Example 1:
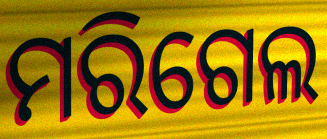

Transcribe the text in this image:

ମରିଗେଲ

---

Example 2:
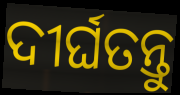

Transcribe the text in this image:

ଦୀର୍ଘତନ୍ତୁ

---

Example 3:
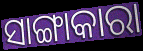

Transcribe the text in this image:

ସାଙ୍ଗାକାରା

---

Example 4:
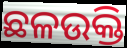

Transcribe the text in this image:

ଛଳଉକ୍ତି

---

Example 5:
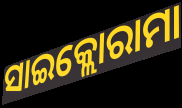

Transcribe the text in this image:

ସାଇକ୍ଲୋରାମା